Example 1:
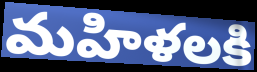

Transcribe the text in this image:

మహిళలకి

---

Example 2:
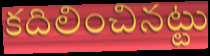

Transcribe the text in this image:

కదిలించినట్టు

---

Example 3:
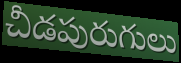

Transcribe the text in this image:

చీడపురుగులు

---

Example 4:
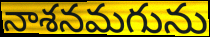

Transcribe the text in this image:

నాశనమగును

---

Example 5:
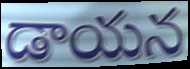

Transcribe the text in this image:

డాయన